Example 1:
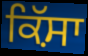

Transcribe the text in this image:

ਕ਼ਿੱਸਾ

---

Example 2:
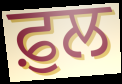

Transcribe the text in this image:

ਫ਼ੁਲ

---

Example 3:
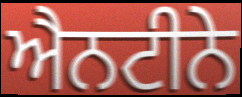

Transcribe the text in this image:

ਐਨਟੀਨੇ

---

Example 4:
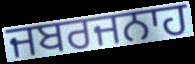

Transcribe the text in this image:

ਜਬਰਜਨਾਹ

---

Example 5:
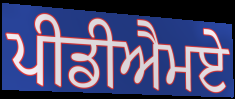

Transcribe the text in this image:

ਪੀਡੀਐਮਏ